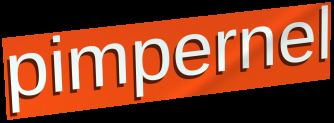
pimpernel